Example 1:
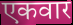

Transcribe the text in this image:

एकवार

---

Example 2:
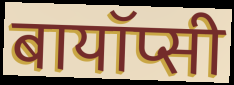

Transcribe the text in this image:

बायॉप्सी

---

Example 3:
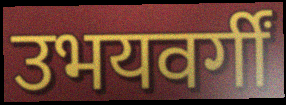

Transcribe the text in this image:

उभयवर्गीं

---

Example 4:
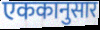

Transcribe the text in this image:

एककानुसार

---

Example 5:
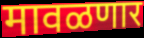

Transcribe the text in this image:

मावळणार